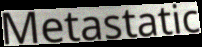
Metastatic